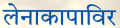
लेनाकापाविर